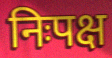
निःपक्ष